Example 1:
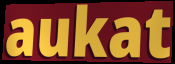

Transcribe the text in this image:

aukat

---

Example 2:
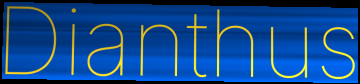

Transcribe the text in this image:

Dianthus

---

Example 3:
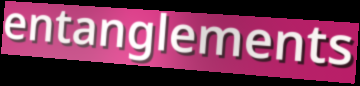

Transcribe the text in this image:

entanglements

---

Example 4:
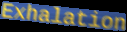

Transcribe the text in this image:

Exhalation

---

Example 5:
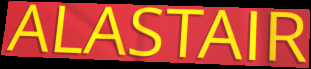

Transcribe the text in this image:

ALASTAIR